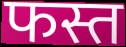
फस्त